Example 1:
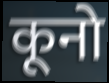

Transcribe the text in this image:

कूनो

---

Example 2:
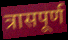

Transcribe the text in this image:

त्रासपूर्ण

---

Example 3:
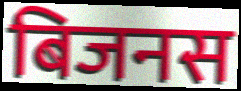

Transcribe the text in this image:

बिजनस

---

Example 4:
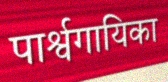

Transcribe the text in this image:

पार्श्वगायिका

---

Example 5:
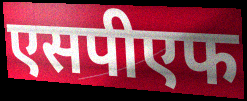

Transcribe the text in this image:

एसपीएफ